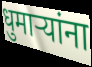
धुमाऱ्यांना